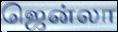
ஜென்லா